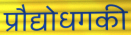
प्रौद्योधगकी